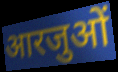
आरजुओं